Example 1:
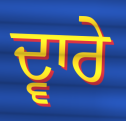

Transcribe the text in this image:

ਦ੍ਵਾਰੇ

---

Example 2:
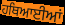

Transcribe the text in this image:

ਹਥਿਆਈਆਂ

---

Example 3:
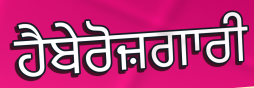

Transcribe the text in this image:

ਹੈਬੇਰੋਜ਼ਗਾਰੀ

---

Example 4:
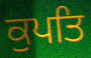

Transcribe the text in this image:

ਕੁਪਤਿ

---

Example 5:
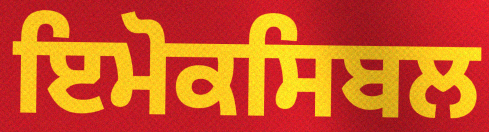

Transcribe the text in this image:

ਇਮੋਕਸਿਬਲ